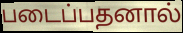
படைப்பதனால்